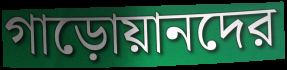
গাড়োয়ানদের